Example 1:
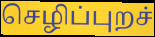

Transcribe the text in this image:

செழிப்புறச்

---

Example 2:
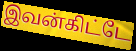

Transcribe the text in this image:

இவன்கிட்டே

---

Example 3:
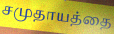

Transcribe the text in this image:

சமுதாயத்தை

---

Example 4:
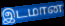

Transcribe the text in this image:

இடமான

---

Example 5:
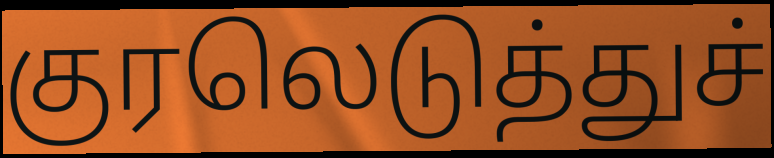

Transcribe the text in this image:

குரலெடுத்துச்